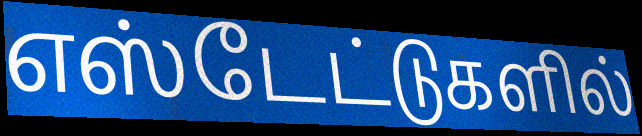
எஸ்டேட்டுகளில்